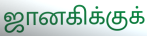
ஜானகிக்குக்